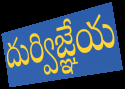
దుర్విజ్ఞేయ